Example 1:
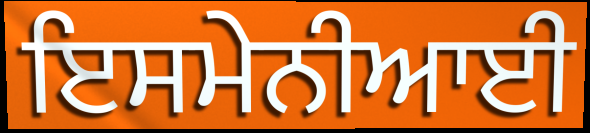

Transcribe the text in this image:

ਇਸਮੇਨੀਆਈ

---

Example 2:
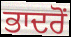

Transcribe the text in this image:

ਭਾਦਰੋਂ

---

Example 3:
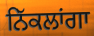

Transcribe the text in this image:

ਨਿੱਕਲਾਂਗਾ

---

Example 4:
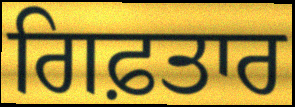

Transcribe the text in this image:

ਗਿਫ਼ਤਾਰ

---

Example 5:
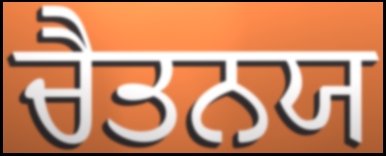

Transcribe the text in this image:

ਚੈਤਨਯ